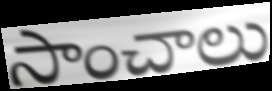
సాంచాలు